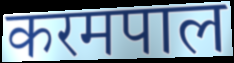
करमपाल